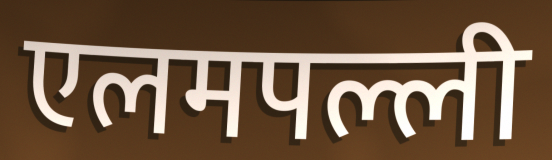
एलमपल्ली